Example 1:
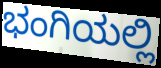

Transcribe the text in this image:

ಭಂಗಿಯಲ್ಲಿ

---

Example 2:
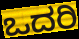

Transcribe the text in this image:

ಒದರಿ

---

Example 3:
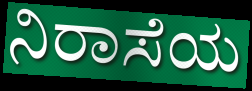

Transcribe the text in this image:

ನಿರಾಸೆಯ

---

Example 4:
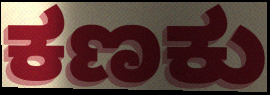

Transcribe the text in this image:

ಕಣಕು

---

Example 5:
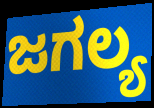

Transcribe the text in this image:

ಜಗಲ್ಯ